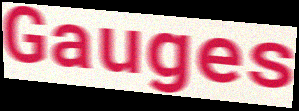
Gauges